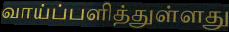
வாய்ப்பளித்துள்ளது